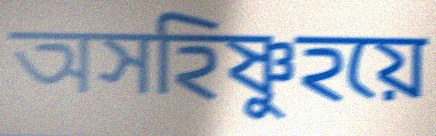
অসহিষ্ণুহয়ে